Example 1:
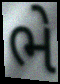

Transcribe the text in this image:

ભે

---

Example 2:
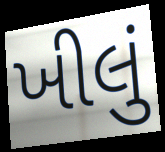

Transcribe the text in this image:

ખીલું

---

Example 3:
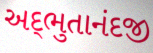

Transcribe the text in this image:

અદ્‌ભુતાનંદજી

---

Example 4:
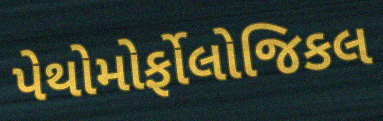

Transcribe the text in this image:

પેથોમોર્ફોલોજિકલ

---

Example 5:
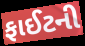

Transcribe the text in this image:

ફાઈટની